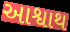
આશ્વાથ